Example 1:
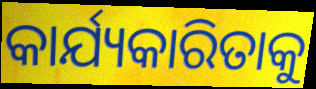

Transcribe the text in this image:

କାର୍ଯ୍ୟକାରିତାକୁ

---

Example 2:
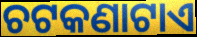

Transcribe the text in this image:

ଚଟକଣାଟାଏ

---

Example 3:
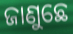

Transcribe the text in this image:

ଜାଣୁଛେ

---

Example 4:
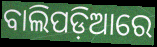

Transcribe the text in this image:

ବାଲିପଡ଼ିଆରେ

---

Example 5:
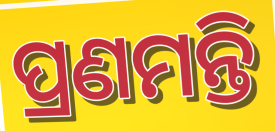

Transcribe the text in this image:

ପ୍ରଣମନ୍ତି